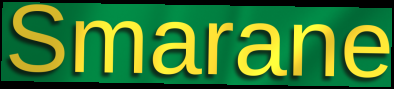
Smarane